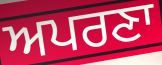
ਅਪਰਣਾ